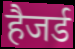
हैजर्ड